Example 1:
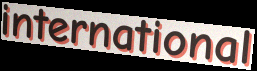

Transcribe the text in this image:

international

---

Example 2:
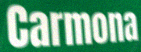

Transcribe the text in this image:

Carmona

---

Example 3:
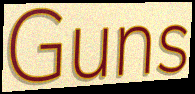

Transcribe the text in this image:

Guns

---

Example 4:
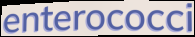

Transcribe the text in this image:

enterococci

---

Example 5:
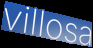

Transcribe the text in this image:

villosa